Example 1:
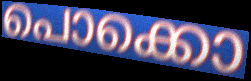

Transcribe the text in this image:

പൊക്കൊ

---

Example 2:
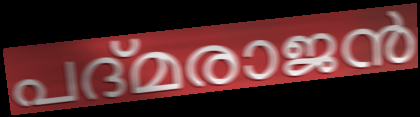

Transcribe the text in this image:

പദ്മരാജൻ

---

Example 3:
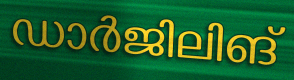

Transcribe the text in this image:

ഡാർജിലിങ്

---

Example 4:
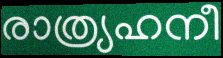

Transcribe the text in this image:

രാത്ര്യഹനീ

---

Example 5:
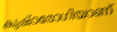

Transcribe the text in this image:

കുഷ്ഠരോഗിയാണ്